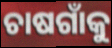
ଚାଷଗାଁକୁ